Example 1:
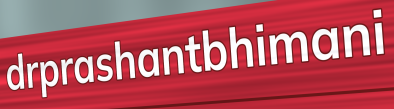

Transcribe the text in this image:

drprashantbhimani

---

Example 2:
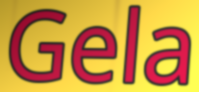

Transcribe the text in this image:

Gela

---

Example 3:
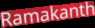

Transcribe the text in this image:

Ramakanth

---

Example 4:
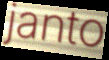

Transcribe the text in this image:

janto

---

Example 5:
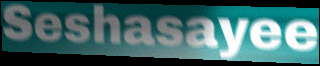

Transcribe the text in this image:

Seshasayee